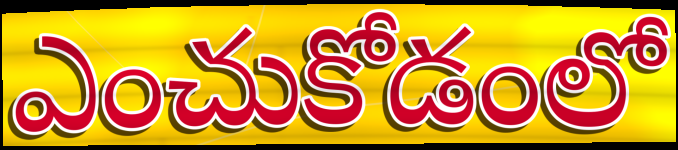
ఎంచుకోడంలో